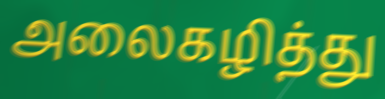
அலைகழித்து